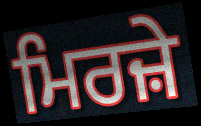
ਮਿਰਜ਼ੇ